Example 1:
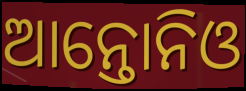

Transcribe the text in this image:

ଆନ୍ତୋନିଓ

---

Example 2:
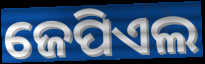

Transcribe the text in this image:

ଜେପିଏଲ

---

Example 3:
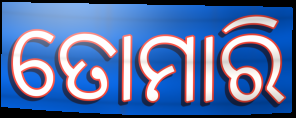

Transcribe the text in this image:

ତୋମାରି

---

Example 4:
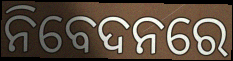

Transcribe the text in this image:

ନିବେଦନରେ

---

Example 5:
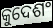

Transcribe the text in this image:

କୁଦେଶଂ